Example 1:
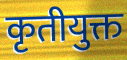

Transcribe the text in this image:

कृतीयुक्त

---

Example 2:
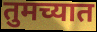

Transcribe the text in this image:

तुमच्यात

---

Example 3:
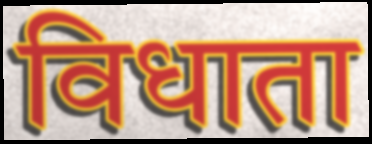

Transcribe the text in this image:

विधाता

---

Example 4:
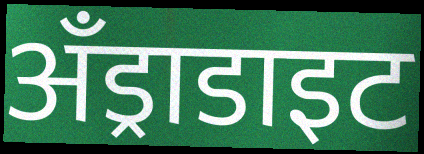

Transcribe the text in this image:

अँड्राडाइट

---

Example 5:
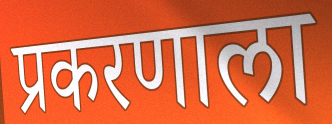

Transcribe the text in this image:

प्रकरणाला